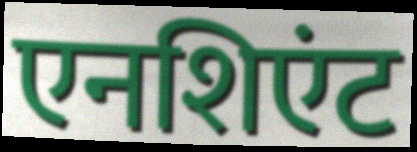
एनशिएंट